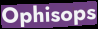
Ophisops